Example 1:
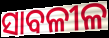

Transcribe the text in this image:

ସାବଳୀଳ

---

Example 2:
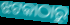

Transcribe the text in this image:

ଝଟକାଠାରୁ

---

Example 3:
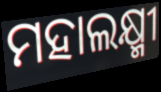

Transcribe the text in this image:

ମହାଲକ୍ଷ୍ମୀ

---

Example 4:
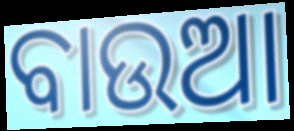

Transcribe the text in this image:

ବାଉଆ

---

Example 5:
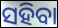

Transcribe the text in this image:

ସହିବା